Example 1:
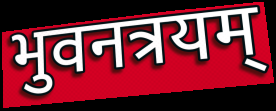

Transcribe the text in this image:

भुवनत्रयम्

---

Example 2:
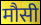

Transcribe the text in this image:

मौसी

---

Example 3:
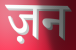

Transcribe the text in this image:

ज़न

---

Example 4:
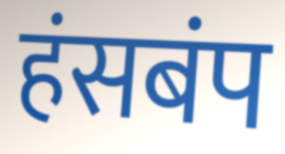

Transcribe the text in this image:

हंसबंप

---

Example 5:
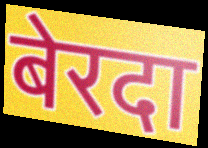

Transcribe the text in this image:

बेरदा